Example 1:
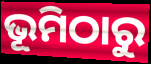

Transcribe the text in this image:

ଭୂମିଠାରୁ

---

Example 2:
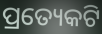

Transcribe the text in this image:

ପ୍ରତ୍ୟେକଟି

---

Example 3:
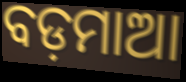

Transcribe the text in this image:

ବଡ଼ମାଆ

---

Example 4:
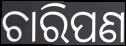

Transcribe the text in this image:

ଚାରିପଣ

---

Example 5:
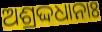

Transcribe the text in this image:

ଅଶ୍ରଦ୍ଦଧାନାଃ